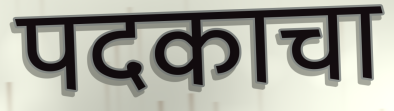
पदकाचा